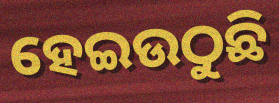
ହେଇଉଠୁଛି